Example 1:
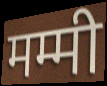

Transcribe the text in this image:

मम्‍मी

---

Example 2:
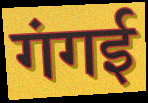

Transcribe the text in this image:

गंगई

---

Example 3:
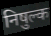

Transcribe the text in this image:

निषुल्क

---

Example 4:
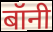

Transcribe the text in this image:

बॉनी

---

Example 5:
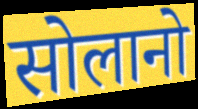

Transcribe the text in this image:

सोलानो